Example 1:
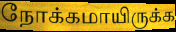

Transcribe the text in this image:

நோக்கமாயிருக்க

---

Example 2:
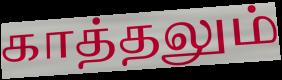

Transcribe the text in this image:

காத்தலும்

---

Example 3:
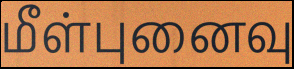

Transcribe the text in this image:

மீள்புனைவு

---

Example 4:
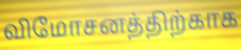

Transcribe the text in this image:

விமோசனத்திற்காக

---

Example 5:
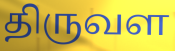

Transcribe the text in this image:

திருவள